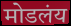
मोडलंय